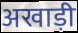
अखाड़ी